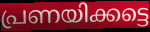
പ്രണയിക്കട്ടെ